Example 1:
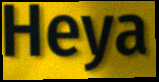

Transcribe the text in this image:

Heya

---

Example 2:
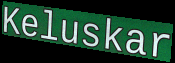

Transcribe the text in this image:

Keluskar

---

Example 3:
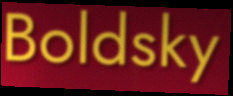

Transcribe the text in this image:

Boldsky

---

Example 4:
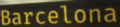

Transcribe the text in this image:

Barcelona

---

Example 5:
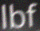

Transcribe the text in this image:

lbf